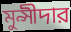
মুন্সীদার